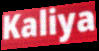
Kaliya